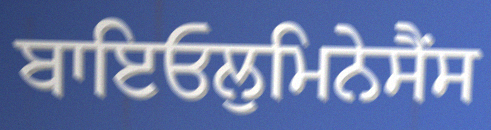
ਬਾਇਓਲੁਮਿਨੇਸੈਂਸ